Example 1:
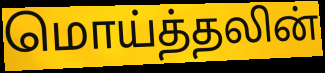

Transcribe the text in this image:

மொய்த்தலின்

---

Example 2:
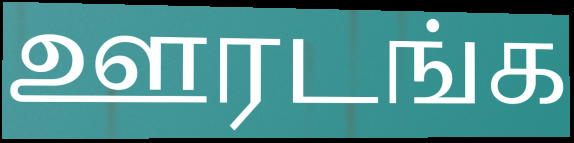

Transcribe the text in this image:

ஊரடங்க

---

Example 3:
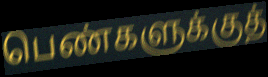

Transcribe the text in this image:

பெண்களுக்குத்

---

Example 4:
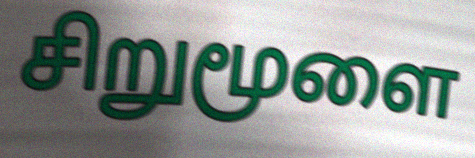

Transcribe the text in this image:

சிறுமூளை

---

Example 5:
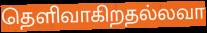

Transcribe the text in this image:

தெளிவாகிறதல்லவா